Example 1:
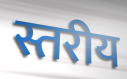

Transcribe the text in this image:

स्तरीय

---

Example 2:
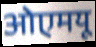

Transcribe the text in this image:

ओएमयू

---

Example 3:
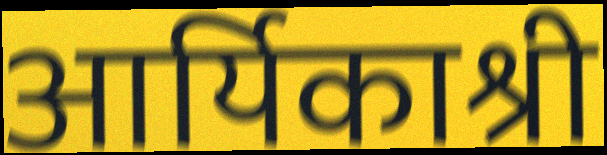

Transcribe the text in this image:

आर्यिकाश्री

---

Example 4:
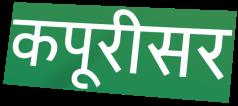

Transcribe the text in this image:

कपूरीसर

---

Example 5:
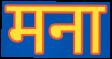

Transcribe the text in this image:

मना